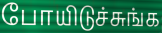
போயிடுச்சுங்க